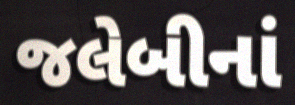
જલેબીનાં